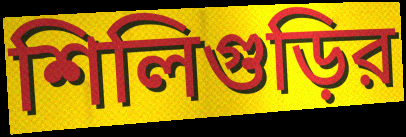
শিলিগুড়ির